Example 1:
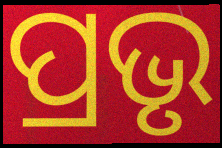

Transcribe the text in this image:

ପ୍ରଭୃ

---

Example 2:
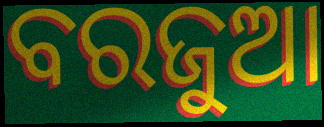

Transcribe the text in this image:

ବରଜୁଆ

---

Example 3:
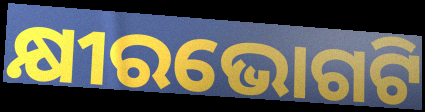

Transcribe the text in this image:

କ୍ଷୀରଭୋଗଟି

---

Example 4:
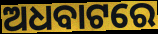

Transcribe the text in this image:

ଅଧବାଟରେ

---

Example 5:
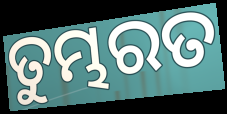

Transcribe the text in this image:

ତୁମ୍ଭରତ